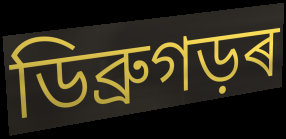
ডিব্ৰুগড়ৰ